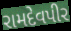
રામદેવપીર